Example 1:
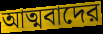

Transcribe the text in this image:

আত্মবাদের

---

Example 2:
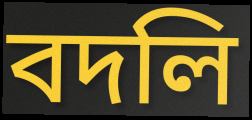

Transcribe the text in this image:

বদলি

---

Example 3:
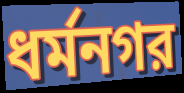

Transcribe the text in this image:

ধর্মনগর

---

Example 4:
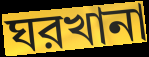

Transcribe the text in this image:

ঘরখানা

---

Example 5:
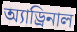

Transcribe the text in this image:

অ্যাড্রিনাল